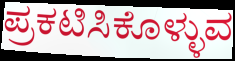
ಪ್ರಕಟಿಸಿಕೊಳ್ಳುವ